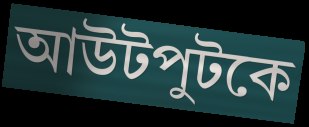
আউটপুটকে